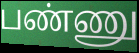
பண்ணு